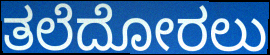
ತಲೆದೋರಲು